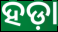
ହଡ଼ା